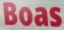
Boas